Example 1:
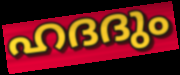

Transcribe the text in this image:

ഹദദും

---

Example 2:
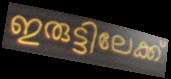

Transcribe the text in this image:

ഇരുട്ടിലേക്ക്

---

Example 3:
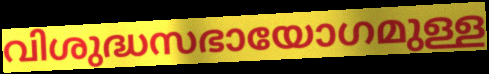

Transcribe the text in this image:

വിശുദ്ധസഭായോഗമുള്ള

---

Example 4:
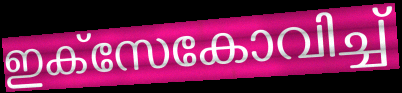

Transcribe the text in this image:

ഇക്‌സേകോവിച്ച്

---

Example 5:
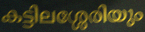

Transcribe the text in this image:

കട്ടിലശ്ശേരിയും